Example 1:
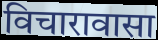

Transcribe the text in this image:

विचारावासा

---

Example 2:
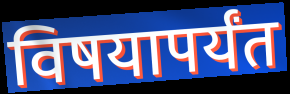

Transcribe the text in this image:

विषयापर्यंत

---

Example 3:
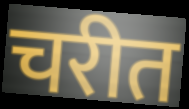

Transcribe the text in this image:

चरीत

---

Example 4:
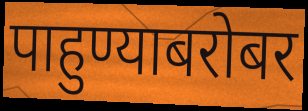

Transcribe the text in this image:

पाहुण्याबरोबर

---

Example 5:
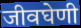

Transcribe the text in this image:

जीवघेणी